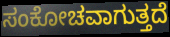
ಸಂಕೋಚವಾಗುತ್ತದೆ